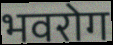
भवरोग